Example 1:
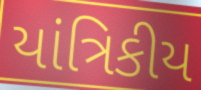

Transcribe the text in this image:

યાંત્રિકીય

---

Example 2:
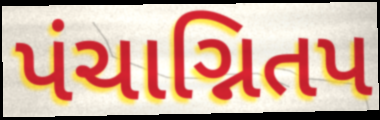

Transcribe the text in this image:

પંચાગ્નિતપ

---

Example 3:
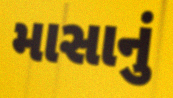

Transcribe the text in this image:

માસાનું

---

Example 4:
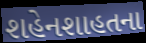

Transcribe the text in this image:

શહેનશાહતના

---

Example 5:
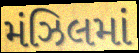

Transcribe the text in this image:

મંઝિલમાં